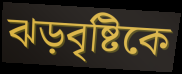
ঝড়বৃষ্টিকে